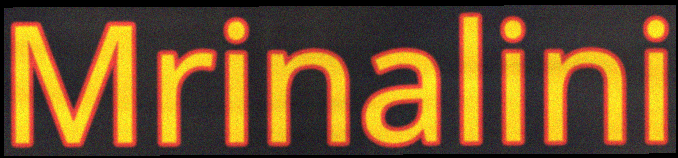
Mrinalini